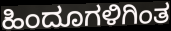
ಹಿಂದೂಗಳಿಗಿಂತ